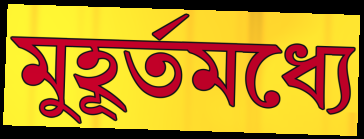
মুহূর্তমধ্যে